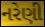
નરેણી